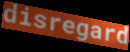
disregard